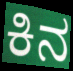
ಕಿನ